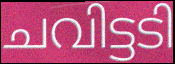
ചവിട്ടടി